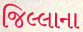
જિલ્લાના